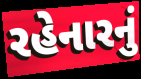
રહેનારનું